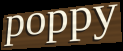
poppy